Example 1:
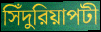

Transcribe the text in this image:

সিঁদুরিয়াপটী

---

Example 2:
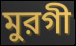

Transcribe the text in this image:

মুরগী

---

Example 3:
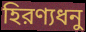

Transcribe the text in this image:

হিরণ্যধনু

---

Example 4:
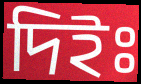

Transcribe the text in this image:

দিইঃ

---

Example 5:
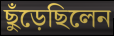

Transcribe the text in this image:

ছুঁড়েছিলেন